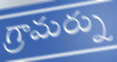
గ్రామర్ను